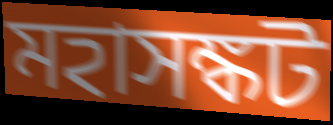
মহাসঙ্কট